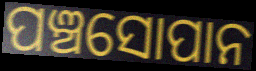
ପଞ୍ଚସୋପାନ